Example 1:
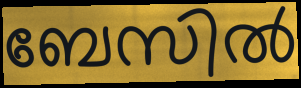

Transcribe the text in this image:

ബേസിൽ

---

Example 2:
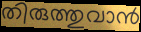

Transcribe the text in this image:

തിരുത്തുവാൻ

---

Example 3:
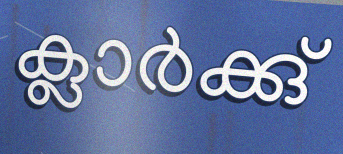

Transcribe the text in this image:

ക്ലാർക്കു്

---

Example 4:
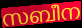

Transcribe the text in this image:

സബീന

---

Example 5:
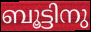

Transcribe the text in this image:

ബൂട്ടിനു